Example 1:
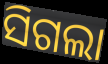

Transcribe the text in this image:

ସିଗଲା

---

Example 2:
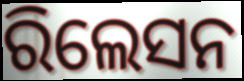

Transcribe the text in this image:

ରିଲେସନ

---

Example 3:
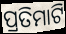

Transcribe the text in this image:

ପ୍ରତିମାଟି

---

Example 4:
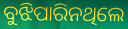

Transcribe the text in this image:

ବୁଝିପାରିନଥିଲେ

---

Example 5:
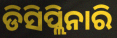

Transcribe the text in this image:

ଡିସିପ୍ଲିନାରି